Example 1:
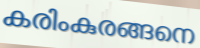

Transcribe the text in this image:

കരിംകുരങ്ങനെ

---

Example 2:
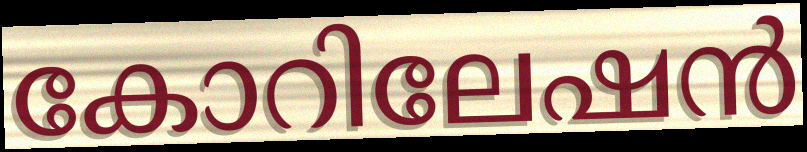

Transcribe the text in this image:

കോറിലേഷൻ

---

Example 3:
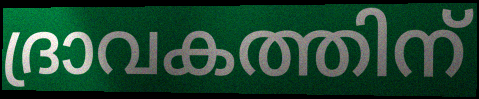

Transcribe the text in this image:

ദ്രാവകത്തിന്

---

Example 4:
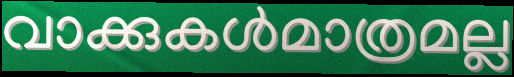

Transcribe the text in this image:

വാക്കുകൾമാത്രമല്ല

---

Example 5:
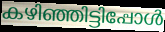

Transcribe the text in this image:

കഴിഞ്ഞിട്ടിപ്പോൾ